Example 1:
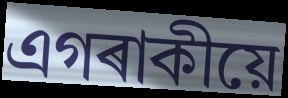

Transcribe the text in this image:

এগৰাকীয়ে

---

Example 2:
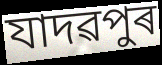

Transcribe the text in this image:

যাদৱপুৰ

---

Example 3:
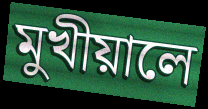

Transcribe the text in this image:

মুখীয়ালে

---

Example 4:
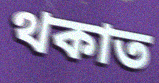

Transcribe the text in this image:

থকাত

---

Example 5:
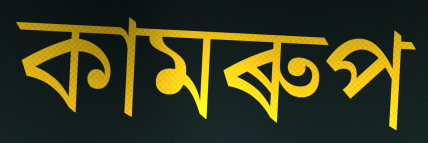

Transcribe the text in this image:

কামৰুপ